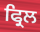
ਫ੍ਰਿਲ